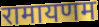
रामायणम